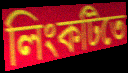
লিংকটিতে